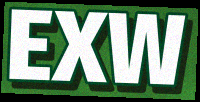
EXW